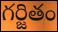
గర్జితం